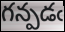
గన్పడఁ